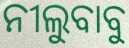
ନୀଲୁବାବୁ